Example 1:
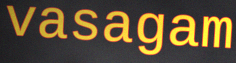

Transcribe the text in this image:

vasagam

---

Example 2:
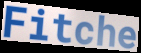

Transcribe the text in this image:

Fitche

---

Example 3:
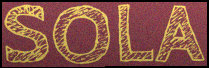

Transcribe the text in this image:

SOLA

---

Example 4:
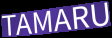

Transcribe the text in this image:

TAMARU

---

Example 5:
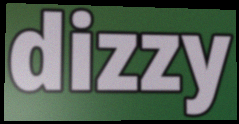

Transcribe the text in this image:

dizzy